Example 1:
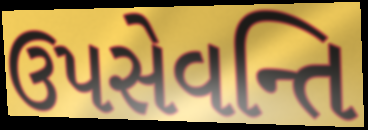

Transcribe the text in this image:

ઉપસેવન્તિ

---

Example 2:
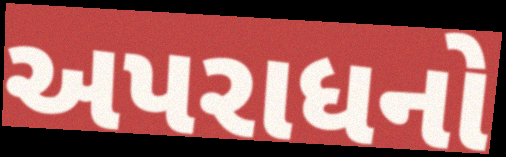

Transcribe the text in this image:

અપરાધનો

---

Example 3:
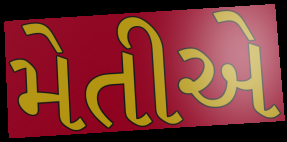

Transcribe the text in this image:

મેતીએ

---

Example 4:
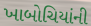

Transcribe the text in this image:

ખાબોચિયાંની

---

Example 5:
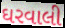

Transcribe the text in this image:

ઘરવાલી